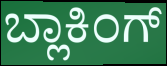
ಬ್ಲಾಕಿಂಗ್